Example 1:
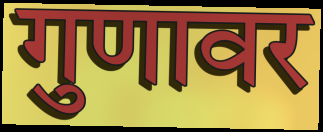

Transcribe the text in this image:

गुणावर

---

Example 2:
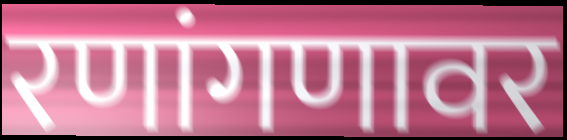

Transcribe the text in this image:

रणांगणावर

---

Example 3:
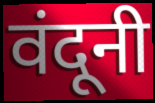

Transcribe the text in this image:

वंदूनी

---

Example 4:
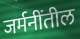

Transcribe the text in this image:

जर्मनींतील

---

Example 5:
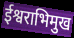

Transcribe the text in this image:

ईश्वराभिमुख